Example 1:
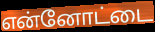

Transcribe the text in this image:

என்னோட்டை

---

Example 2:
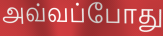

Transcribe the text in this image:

அவ்வப்போது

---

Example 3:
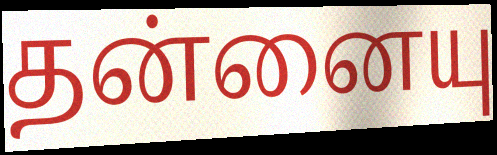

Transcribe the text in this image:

தன்னையு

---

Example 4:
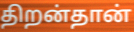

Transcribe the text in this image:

திறன்தான்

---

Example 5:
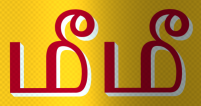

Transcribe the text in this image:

மீமீ